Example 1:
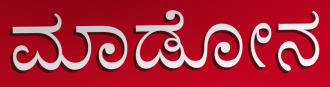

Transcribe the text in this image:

ಮಾಡೋನ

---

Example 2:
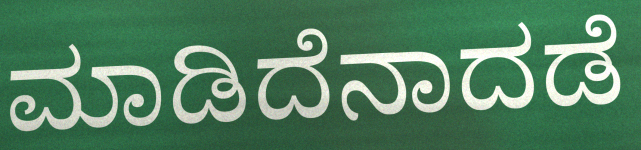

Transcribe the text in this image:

ಮಾಡಿದೆನಾದಡೆ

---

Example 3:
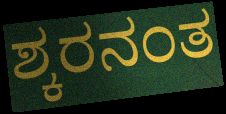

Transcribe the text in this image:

ಶ್ಕರನಂತ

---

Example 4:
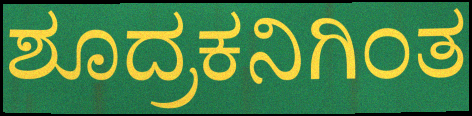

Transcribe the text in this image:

ಶೂದ್ರಕನಿಗಿಂತ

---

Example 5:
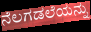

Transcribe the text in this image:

ನೆಲಗಡಲೆಯನ್ನು